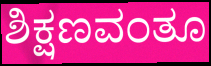
ಶಿಕ್ಷಣವಂತೂ